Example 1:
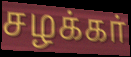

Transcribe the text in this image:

சழக்கர்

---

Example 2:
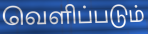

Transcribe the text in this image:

வெளிப்படும்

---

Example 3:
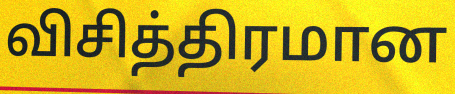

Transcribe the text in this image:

விசித்திரமான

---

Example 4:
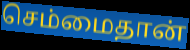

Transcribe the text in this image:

செம்மைதான்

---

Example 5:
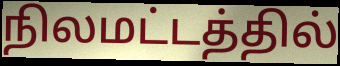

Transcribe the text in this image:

நிலமட்டத்தில்